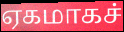
ஏகமாகச்